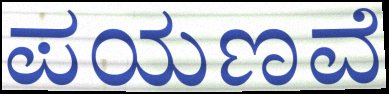
ಪಯಣವೆ